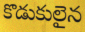
కొడుకులైన